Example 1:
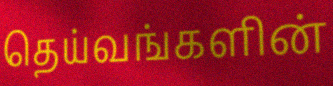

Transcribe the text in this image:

தெய்வங்களின்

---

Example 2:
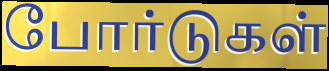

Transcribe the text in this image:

போர்டுகள்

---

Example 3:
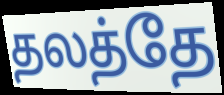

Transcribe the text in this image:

தலத்தே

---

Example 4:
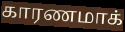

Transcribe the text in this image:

காரணமாக்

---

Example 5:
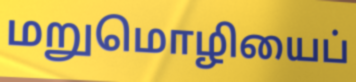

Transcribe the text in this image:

மறுமொழியைப்